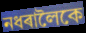
নধৰালৈকে